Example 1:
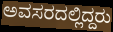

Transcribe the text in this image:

ಅವಸರದಲ್ಲಿದ್ದರು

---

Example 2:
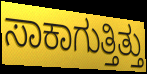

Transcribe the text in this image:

ಸಾಕಾಗುತ್ತಿತ್ತು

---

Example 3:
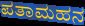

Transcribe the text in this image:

ಪತಾಮಹನ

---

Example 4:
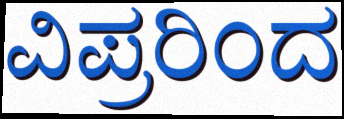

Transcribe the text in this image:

ವಿಪ್ರರಿಂದ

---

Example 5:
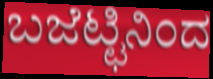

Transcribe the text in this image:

ಬಜೆಟ್ಟಿನಿಂದ